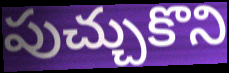
పుచ్చుకొని